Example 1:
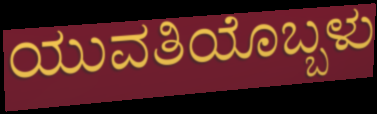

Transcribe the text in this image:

ಯುವತಿಯೊಬ್ಬಳು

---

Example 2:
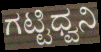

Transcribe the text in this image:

ಗಟ್ಟಿಧ್ವನಿ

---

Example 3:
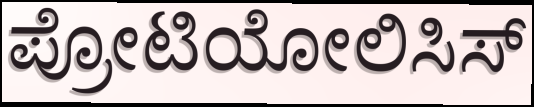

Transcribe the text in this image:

ಪ್ರೋಟಿಯೋಲಿಸಿಸ್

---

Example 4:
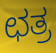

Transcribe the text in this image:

ಛತ್ರ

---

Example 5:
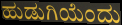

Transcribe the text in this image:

ಹುಡುಗಿಯೆಂದು